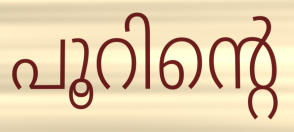
പൂറിന്റെ